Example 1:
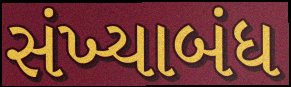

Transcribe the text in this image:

સંખ્યાબંધ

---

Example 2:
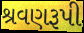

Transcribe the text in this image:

શ્રવણરૂપી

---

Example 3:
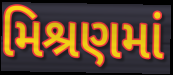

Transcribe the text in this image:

મિશ્રણમાં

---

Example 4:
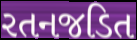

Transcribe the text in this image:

રતનજડિત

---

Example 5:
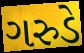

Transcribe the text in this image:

ગરુડે